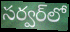
సర్వర్‌లో